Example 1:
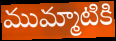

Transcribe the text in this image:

ముమ్మాటికి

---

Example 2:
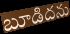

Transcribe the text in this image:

బూడిదను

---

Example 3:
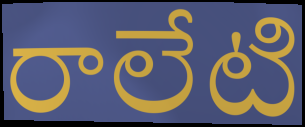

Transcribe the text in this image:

రాలేటి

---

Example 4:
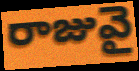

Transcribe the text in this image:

రాజువై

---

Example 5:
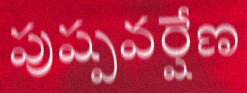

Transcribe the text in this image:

పుష్పవర్షేణ